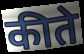
कीते